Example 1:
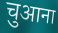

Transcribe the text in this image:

चुआना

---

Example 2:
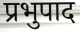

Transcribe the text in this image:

प्रभुपाद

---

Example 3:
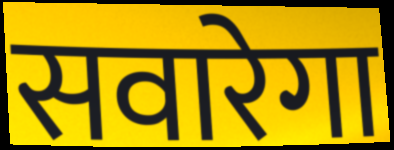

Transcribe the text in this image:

सवारेगा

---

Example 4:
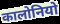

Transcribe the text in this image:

कालोनियो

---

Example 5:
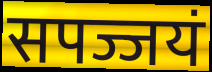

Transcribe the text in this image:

सपज्जयं